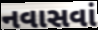
નવાસવાં